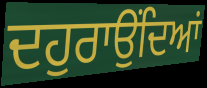
ਦਹੁਰਾਉਂਦਿਆਂ